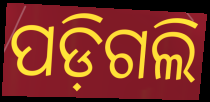
ପଡ଼ିଗଲି